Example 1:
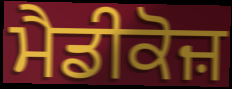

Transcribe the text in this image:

ਮੈਡੀਕੋਜ਼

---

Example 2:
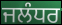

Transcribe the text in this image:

ਜਲੰਧਰ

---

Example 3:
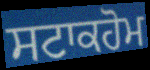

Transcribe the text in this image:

ਸਟਾਕਹੋਮ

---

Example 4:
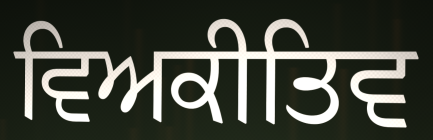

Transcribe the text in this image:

ਵਿਅਕੀਤਿਵ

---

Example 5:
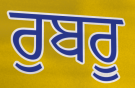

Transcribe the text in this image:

ਰੁਬਰੂ